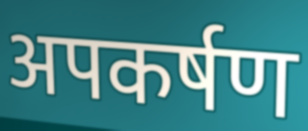
अपकर्षण